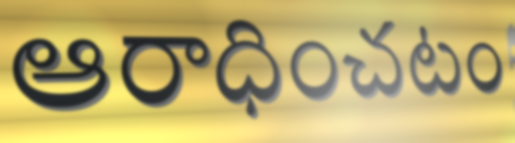
ఆరాధించటం